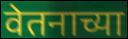
वेतनाच्या